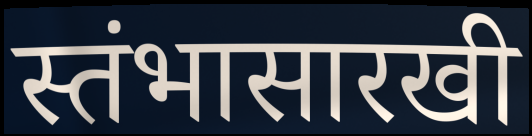
स्तंभासारखी